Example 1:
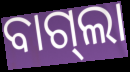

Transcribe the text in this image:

ବାଗ୍‍ଲା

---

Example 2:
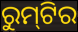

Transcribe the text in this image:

ରୁମ୍‌ଟିର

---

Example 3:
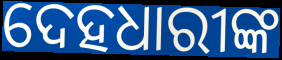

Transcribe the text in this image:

ଦେହଧାରୀଙ୍କ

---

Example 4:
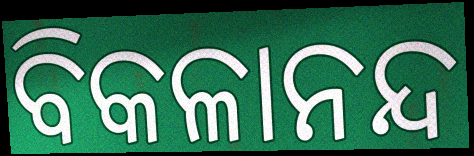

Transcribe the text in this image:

ବିକଳାନନ୍ଦ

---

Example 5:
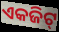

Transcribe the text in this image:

ଏକଜିଟ୍